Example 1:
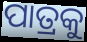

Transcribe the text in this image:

ପାତ୍ରକୁ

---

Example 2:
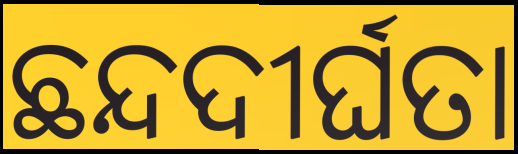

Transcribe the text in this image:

ଛନ୍ଦଦୀର୍ଘତା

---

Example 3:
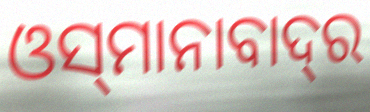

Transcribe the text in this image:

ଓସ୍‌ମାନାବାଦ୍‌ର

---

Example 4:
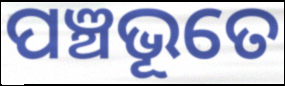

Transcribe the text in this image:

ପଞ୍ଚଭୂତେ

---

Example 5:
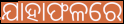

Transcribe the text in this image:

ଯାହାଫଳରେ